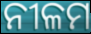
ନୀଳମ